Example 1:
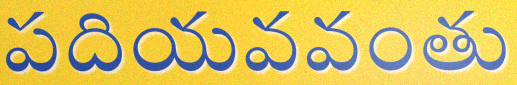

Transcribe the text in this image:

పదియవవంతు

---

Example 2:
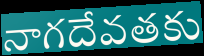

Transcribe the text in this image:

నాగదేవతకు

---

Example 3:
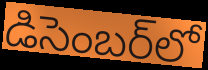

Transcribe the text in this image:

డిసెంబర్‌లో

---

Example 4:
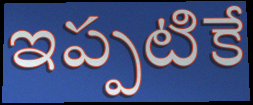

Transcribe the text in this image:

ఇప్పటికే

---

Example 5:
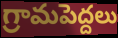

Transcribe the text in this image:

గ్రామపెద్దలు